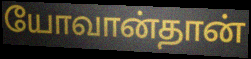
யோவான்தான்